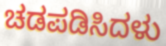
ಚಡಪಡಿಸಿದಳು